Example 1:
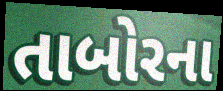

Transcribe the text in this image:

તાબોરના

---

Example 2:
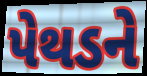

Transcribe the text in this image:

પેથડને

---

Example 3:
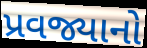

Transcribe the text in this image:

પ્રવજ્યાનો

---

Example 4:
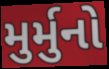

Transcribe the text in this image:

મુર્મુનો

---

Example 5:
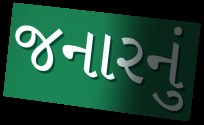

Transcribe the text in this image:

જનારનું